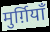
मुर्ग़ियाँ